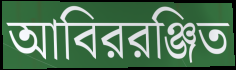
আবিররঞ্জিত